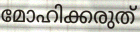
മോഹിക്കരുത്